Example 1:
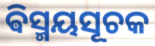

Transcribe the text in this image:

ଵିସ୍ମୟସୂଚକ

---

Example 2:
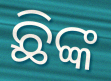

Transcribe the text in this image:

ଛିଙ୍କ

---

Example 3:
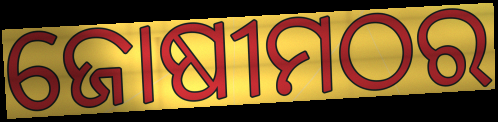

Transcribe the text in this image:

ଜୋଷୀମଠର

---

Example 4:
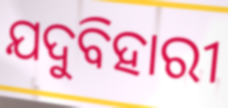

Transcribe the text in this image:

ଯଦୁବିହାରୀ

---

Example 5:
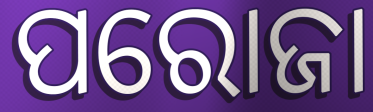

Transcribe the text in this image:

ପରୋଜା